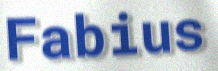
Fabius